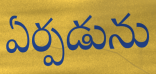
ఏర్పడును